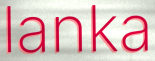
lanka